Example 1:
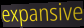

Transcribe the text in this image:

expansive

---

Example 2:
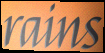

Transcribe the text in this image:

rains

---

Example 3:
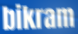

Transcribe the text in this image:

bikram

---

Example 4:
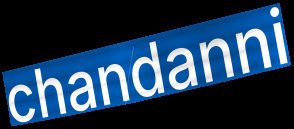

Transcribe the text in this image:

chandanni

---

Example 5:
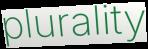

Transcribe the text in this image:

plurality